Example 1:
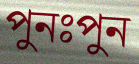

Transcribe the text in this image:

পুনঃপুন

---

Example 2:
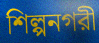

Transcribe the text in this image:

শিল্পনগরী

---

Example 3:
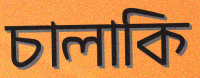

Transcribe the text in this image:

চালাকি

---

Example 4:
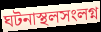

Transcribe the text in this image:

ঘটনাস্থলসংলগ্ন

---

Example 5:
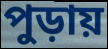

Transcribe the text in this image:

পুড়ায়